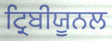
ਟ੍ਰਿਬੀਯੂਨਲ